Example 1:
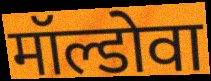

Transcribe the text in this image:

मॉल्डोवा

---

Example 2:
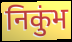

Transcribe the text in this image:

निकुंभ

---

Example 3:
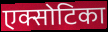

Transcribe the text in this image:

एक्सोटिका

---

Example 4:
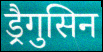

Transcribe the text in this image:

ड्रैगुसिन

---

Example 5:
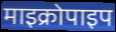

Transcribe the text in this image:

माइक्रोपाइप